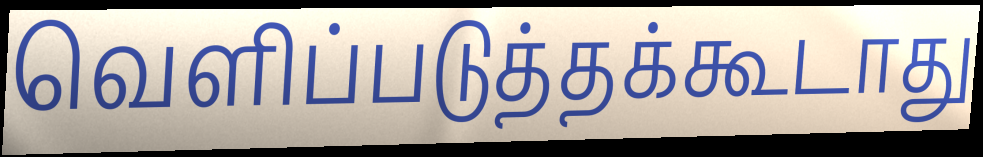
வெளிப்படுத்தக்கூடாது